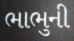
ભાભુની